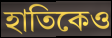
হাতিকেও